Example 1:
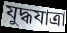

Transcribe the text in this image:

যুদ্ধযাত্রা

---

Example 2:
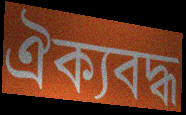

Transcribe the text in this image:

ঐক্যবদ্ধ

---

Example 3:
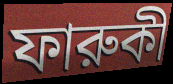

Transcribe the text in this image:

ফারুকী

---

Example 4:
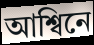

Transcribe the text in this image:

আশ্বিনে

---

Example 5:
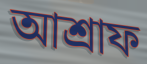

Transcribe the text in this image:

আশ্রাফ